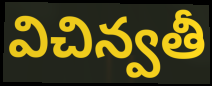
విచిన్వతీ